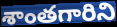
శాంతగారిని